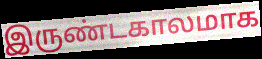
இருண்டகாலமாக